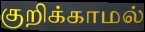
குறிக்காமல்